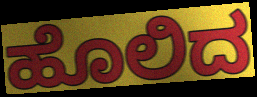
ಹೊಲಿದ